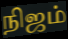
நிஜம்